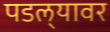
पडल्यावर